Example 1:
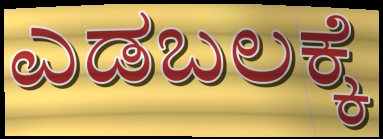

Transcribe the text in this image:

ಎಡಬಲಕ್ಕೆ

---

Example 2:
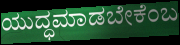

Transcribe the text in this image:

ಯುದ್ಧಮಾಡಬೇಕೆಂಬ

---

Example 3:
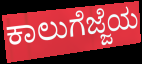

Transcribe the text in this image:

ಕಾಲುಗೆಜ್ಜೆಯ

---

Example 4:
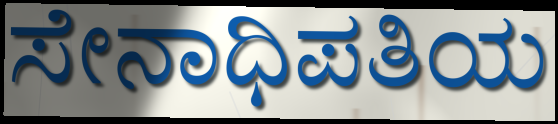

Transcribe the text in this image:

ಸೇನಾಧಿಪತಿಯ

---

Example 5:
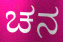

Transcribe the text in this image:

ಚನ